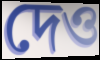
দেও